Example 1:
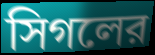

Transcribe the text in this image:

সিগলের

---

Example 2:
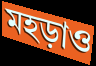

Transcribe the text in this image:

মহড়াও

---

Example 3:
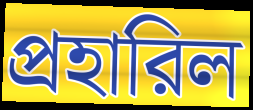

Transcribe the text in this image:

প্রহারিল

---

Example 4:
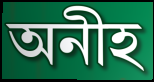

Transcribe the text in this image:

অনীহ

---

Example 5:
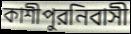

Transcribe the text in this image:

কাশীপুরনিবাসী